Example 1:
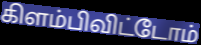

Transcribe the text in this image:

கிளம்பிவிட்டோம்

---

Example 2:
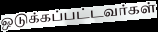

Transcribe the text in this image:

ஒடுக்கப்பட்டவர்கள்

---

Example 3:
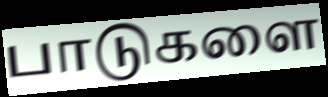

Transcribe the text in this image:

பாடுகளை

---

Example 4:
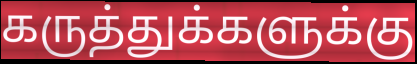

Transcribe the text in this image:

கருத்துக்களுக்கு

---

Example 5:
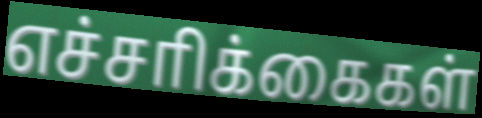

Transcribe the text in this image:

எச்சரிக்கைகள்